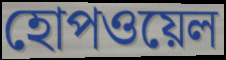
হোপওয়েল